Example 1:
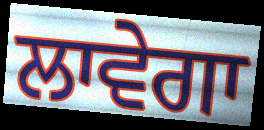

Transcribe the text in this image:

ਲਾਵੇਗਾ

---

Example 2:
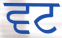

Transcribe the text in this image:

ਵਟ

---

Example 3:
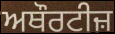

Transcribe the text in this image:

ਅਥੌਰਟੀਜ਼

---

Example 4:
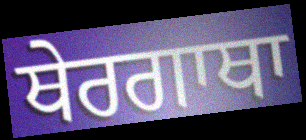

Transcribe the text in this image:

ਥੇਰਗਾਥਾ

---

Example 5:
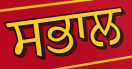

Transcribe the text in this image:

ਸਭਾਲ